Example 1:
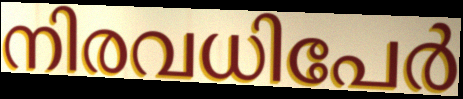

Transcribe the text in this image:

നിരവധിപേർ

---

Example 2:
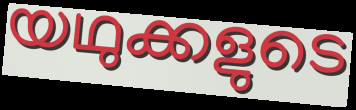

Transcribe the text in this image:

യഥുക്കളുടെ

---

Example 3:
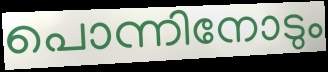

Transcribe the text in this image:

പൊന്നിനോടും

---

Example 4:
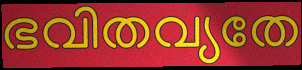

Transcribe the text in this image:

ഭവിതവ്യതേ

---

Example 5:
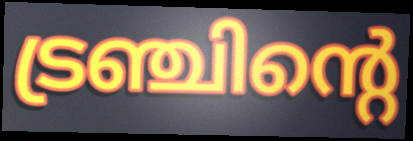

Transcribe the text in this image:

ട്രഞ്ചിന്റെ